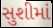
સુશીમાં